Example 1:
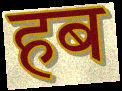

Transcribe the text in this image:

हब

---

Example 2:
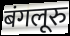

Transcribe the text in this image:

बंगलूरु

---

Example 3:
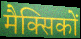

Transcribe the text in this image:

मैक्सिकों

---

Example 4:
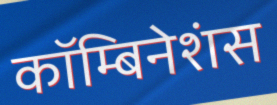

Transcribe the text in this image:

कॉम्बिनेशंस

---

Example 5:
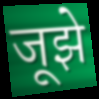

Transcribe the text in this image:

जूझे